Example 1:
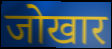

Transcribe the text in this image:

जोखार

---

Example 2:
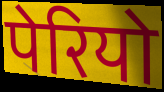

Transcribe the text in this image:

पेरियो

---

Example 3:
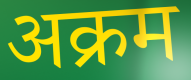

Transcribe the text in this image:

अक्रम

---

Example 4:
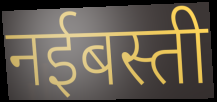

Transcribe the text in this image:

नईबस्ती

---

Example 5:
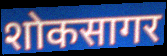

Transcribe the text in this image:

शोकसागर